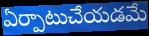
ఏర్పాటుచేయడమే